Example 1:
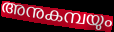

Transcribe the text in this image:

അനുകമ്പയും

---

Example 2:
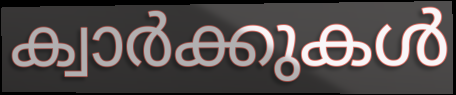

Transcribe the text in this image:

ക്വാർക്കുകൾ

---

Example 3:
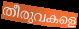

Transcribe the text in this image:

തീരുവകളെ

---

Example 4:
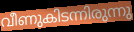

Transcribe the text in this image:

വീണുകിടന്നിരുന്നു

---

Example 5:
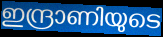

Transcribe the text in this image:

ഇന്ദ്രാണിയുടെ